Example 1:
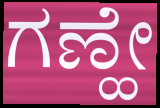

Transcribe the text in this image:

ಗಣ್ಹೇ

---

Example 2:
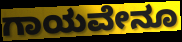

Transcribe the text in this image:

ಗಾಯವೇನೂ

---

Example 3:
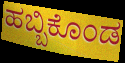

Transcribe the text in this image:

ಹಬ್ಬಿಕೊಂಡ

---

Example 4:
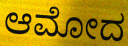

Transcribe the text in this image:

ಆಮೋದ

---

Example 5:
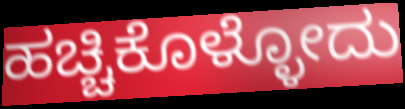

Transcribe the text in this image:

ಹಚ್ಚಿಕೊಳ್ಳೋದು